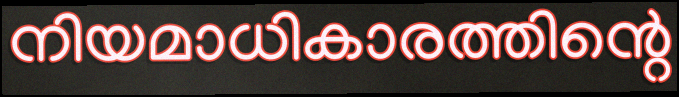
നിയമാധികാരത്തിന്റെ